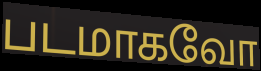
படமாகவோ